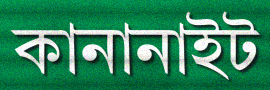
কানানাইট